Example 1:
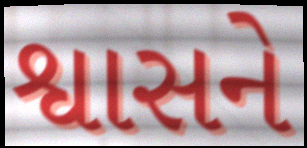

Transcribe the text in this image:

શ્વાસને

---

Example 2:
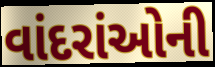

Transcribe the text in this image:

વાંદરાંઓની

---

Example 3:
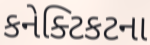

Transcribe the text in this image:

કનેક્ટિકટના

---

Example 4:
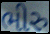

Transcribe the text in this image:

ભીરુ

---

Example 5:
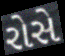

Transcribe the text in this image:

રોસે